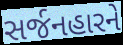
સર્જનહારને